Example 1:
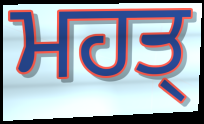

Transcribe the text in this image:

ਮਹਤ੍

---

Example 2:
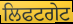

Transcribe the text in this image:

ਲਿਫਟਗੇਟ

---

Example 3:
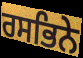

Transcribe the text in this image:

ਰਸਭਿਨੇ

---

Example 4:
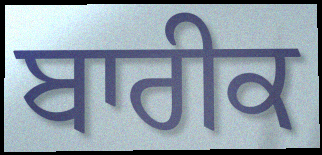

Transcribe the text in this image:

ਬਾਰੀਕ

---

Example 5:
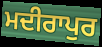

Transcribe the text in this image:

ਮਦੀਰਾਪੁਰ